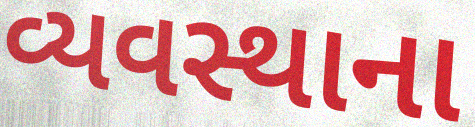
વ્યવસ્થાના